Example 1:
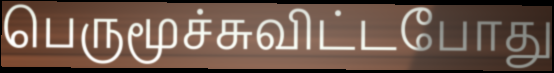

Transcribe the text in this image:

பெருமூச்சுவிட்டபோது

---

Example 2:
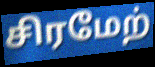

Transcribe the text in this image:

சிரமேற்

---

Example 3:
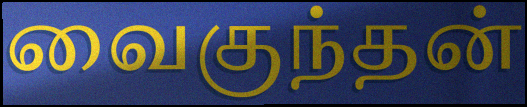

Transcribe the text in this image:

வைகுந்தன்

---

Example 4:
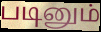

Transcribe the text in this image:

படினும்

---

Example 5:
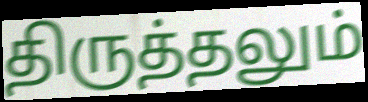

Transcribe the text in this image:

திருத்தலும்